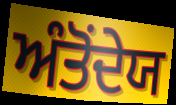
ਅੰਤੋਂਦੇਯ